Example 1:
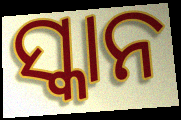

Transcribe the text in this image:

ସ୍କାନ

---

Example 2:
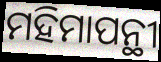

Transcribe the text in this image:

ମହିମାପନ୍ଥୀ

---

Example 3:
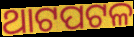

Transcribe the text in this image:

ଥାଟପଟଳ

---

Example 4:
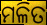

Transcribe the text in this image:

ମଳିତ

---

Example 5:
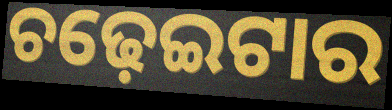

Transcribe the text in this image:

ଚଢ଼େଇଟାର